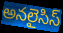
అనలైసిస్